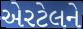
એરટેલને